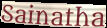
Sainatha